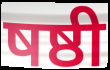
षष्ठी